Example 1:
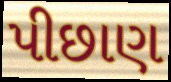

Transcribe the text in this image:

પીછાણ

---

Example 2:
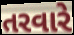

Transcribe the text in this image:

તરવારે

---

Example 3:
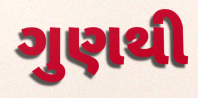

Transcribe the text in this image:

ગુણથી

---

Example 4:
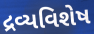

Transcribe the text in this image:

દ્રવ્યવિશેષ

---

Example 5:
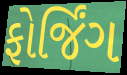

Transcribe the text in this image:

ફોર્જિંગ